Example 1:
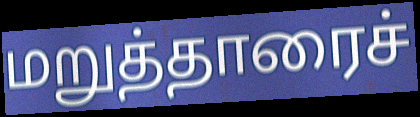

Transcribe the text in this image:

மறுத்தாரைச்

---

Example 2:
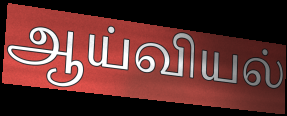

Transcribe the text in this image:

ஆய்வியல்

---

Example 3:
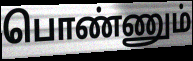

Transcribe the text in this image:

பொண்ணும்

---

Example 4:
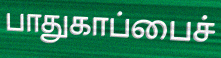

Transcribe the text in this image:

பாதுகாப்பைச்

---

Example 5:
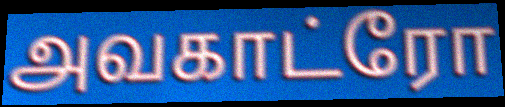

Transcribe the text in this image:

அவகாட்ரோ